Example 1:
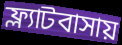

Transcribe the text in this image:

ফ্ল্যাটবাসায়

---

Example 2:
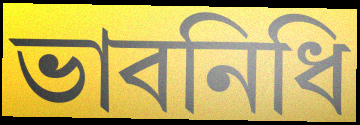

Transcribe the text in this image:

ভাবনিধি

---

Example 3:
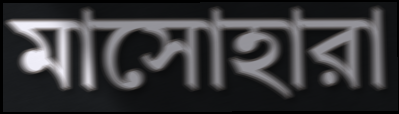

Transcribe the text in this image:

মাসোহারা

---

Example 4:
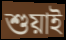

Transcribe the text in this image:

শুয়াই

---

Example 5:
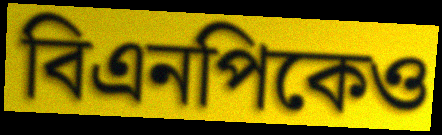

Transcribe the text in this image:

বিএনপিকেও